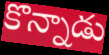
కొన్నాడు